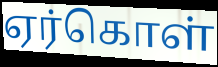
ஏர்கொள்